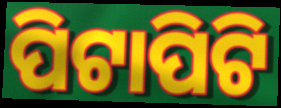
ପିଟାପିଟି